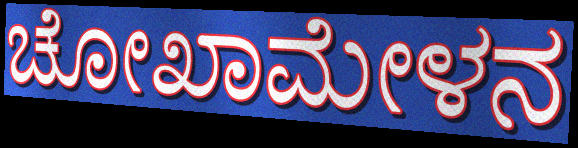
ಚೋಖಾಮೇಳನ